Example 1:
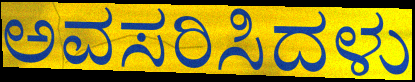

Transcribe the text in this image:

ಅವಸರಿಸಿದಳು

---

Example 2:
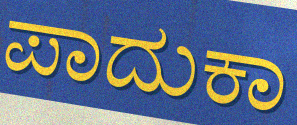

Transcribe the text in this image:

ಪಾದುಕಾ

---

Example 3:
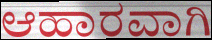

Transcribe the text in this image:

ಆಹಾರವಾಗಿ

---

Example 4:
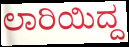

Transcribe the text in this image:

ಲಾರಿಯಿದ್ದ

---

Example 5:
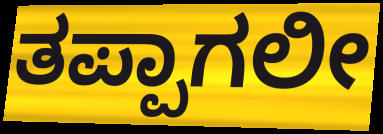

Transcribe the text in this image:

ತಪ್ಪಾಗಲೀ